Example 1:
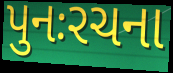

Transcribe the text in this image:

પુનઃરચના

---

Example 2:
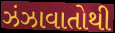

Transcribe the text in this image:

ઝંઝાવાતોથી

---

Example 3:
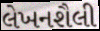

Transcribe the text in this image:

લેખનશૈલી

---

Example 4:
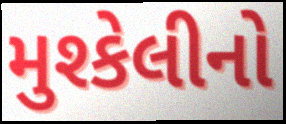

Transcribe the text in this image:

મુશ્કેલીનો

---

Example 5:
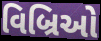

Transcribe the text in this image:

વિબ્રિઓ